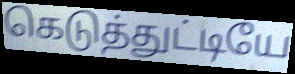
கெடுத்துட்டியே